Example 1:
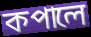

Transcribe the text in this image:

কপালে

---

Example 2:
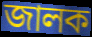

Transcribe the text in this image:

জালক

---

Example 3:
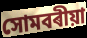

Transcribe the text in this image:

সোমবৰীয়া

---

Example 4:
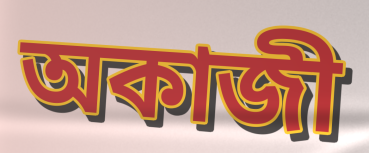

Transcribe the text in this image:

অকাজী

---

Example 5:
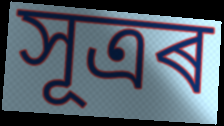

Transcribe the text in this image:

সূত্ৰৰ